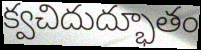
క్వచిదుద్భూతం